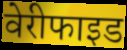
वेरीफाइड